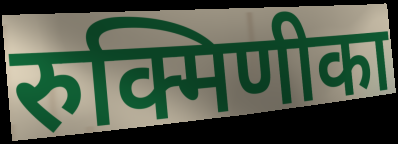
रुक्मिणीका